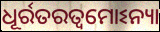
ଧୂର୍ରତରତ୍ୱମୋଽନ୍ୟା